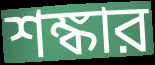
শঙ্কার